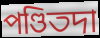
পণ্ডিতদা